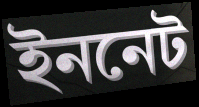
ইননেট